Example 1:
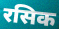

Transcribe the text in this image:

रसिक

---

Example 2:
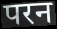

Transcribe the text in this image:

परन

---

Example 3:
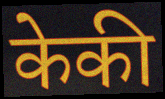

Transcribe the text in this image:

केकी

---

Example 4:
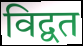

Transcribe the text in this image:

विद्वत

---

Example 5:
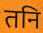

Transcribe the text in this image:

तनि